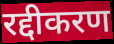
रद्दीकरण